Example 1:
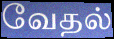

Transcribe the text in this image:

வேதல்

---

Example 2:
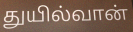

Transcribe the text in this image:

துயில்வான்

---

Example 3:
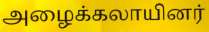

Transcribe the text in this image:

அழைக்கலாயினர்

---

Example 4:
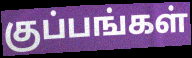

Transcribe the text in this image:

குப்பங்கள்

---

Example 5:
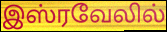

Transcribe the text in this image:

இஸ்ரவேலில்